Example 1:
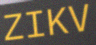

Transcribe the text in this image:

ZIKV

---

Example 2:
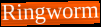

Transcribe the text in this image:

Ringworm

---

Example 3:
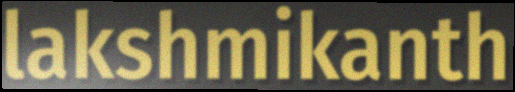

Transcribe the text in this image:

lakshmikanth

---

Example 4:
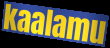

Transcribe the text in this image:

kaalamu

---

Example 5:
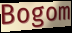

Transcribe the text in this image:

Bogom